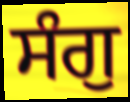
ਸੰਗੁ